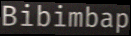
Bibimbap